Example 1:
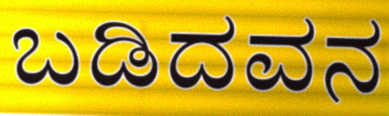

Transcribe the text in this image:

ಬಡಿದವನ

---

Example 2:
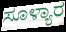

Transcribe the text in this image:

ಸೂಳ್ಯಾರ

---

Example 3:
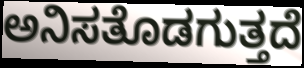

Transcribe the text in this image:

ಅನಿಸತೊಡಗುತ್ತದೆ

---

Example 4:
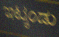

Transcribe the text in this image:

ಇಟ್ಕಂಡು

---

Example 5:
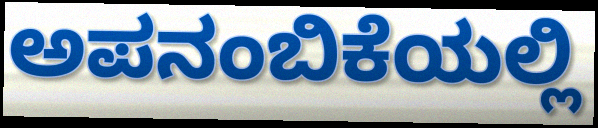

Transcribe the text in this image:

ಅಪನಂಬಿಕೆಯಲ್ಲಿ